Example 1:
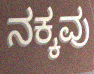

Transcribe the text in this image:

ನಕ್ಕವು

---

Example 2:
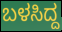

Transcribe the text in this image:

ಬಳಸಿದ್ದ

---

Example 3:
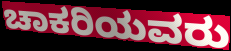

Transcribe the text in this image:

ಚಾಕರಿಯವರು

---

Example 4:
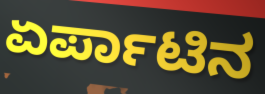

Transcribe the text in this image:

ಏರ್ಪಾಟಿನ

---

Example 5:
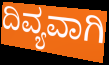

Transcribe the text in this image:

ದಿವ್ಯವಾಗಿ